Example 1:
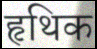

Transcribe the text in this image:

हृथिक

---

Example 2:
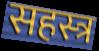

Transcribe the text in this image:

सहस्‍त्र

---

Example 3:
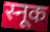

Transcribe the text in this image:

स्नूक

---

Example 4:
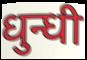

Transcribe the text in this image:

धुन्धी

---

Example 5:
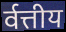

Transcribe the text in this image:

र्वत्तीय